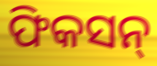
ଫିକସନ୍